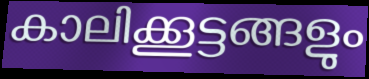
കാലിക്കൂട്ടങ്ങളും